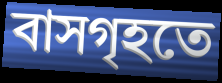
বাসগৃহতে